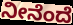
ನೀನೆಂದೆ